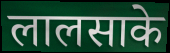
लालसाके